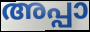
അപ്പാ